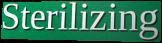
Sterilizing